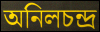
অনিলচন্দ্র